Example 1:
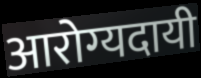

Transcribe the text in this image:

आरोग्यदायी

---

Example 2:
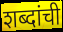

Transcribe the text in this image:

शब्दांची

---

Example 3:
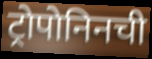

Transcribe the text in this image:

ट्रोपोनिनची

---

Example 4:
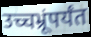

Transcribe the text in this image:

उच्चभ्रूंपर्यंत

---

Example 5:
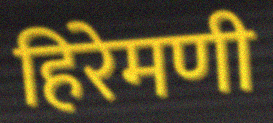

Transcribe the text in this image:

हिरेमणी